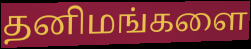
தனிமங்களை